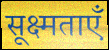
सूक्ष्मताएँ